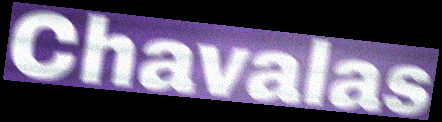
Chavalas